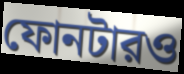
ফোনটারও